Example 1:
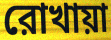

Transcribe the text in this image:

রোখায়া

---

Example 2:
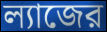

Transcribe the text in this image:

ল্যাজের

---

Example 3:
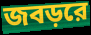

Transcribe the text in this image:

জবড়রে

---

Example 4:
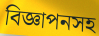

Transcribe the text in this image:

বিজ্ঞাপনসহ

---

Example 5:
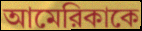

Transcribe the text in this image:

আমেরিকাকে